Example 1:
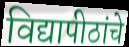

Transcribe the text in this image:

विद्यापीठांचे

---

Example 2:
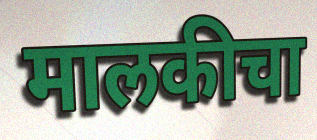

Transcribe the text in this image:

मालकीचा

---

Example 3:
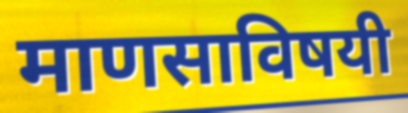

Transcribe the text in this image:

माणसाविषयी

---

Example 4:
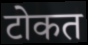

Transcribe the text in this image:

टोकत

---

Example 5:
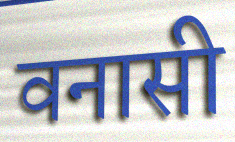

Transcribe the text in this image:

वनासी